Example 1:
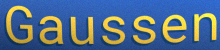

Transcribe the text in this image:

Gaussen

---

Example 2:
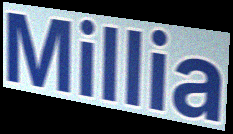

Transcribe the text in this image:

Millia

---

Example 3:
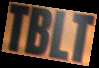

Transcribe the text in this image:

TBLT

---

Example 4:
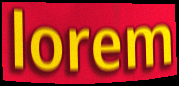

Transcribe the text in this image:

lorem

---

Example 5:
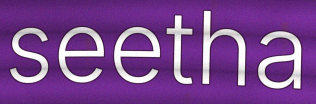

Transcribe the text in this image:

seetha